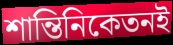
শান্তিনিকেতনই